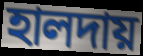
হালদায়